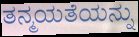
ತನ್ಮಯತೆಯನ್ನು